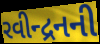
રવીન્દ્રનની